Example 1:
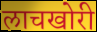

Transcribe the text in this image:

लाचखोरी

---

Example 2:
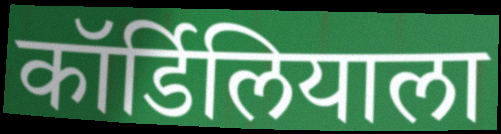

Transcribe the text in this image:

कॉर्डिलियाला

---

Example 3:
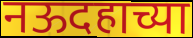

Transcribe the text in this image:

नऊदहाच्या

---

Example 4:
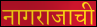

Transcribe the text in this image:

नागराजाची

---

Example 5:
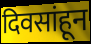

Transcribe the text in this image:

दिवसांहून